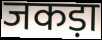
जकड़ा